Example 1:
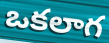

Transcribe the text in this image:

ఒకలాగ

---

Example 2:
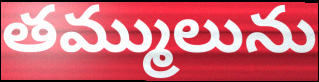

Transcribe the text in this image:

తమ్ములును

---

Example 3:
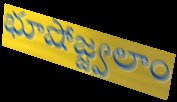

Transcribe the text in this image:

భూషోజ్జ్వలాం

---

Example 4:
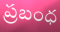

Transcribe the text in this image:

ప్రబంధ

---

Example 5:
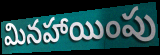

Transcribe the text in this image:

మినహాయింపు